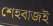
শেহবাজই